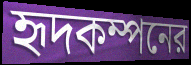
হৃদকম্পনের